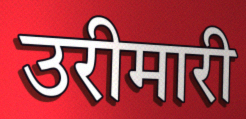
उरीमारी